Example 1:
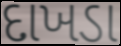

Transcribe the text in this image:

દાખડા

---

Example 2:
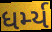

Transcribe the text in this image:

ધર્મ્ય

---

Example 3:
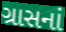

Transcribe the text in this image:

ગ્રાસનાં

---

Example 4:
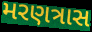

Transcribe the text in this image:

મરણત્રાસ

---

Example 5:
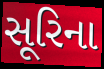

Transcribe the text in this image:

સૂરિના